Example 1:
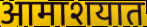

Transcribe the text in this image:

आमाशयात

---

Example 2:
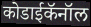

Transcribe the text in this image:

कोडाईकॅनॉल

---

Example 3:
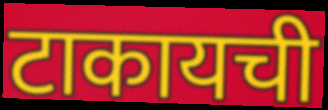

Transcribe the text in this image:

टाकायची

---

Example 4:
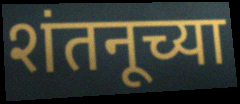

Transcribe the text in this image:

शंतनूच्या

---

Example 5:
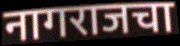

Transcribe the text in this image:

नागराजचा